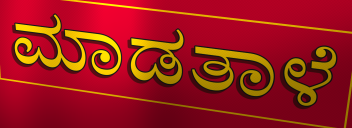
ಮಾಡತಾಳೆ